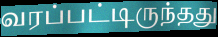
வரப்பட்டிருந்தது